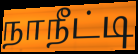
நாநீட்டி